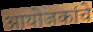
आयोजकांचे